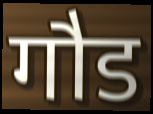
गौड